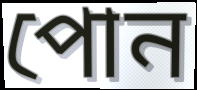
পোন